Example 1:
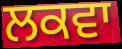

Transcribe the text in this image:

ਲਕਵਾ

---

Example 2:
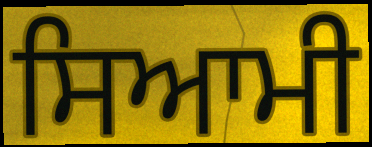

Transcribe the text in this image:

ਸਿਆਮੀ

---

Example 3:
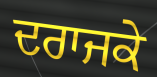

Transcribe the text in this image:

ਦਰਾਜਕੇ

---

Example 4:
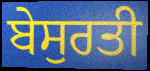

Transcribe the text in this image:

ਬੇਸੁਰਤੀ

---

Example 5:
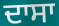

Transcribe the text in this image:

ਦਾਸਾ